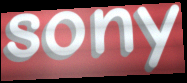
sony